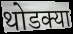
थोडक्या